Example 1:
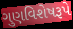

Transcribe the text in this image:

ગુણવિશેષરૂપે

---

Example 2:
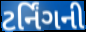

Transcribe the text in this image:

ટર્નિંગની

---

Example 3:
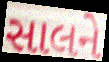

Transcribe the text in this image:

સાલને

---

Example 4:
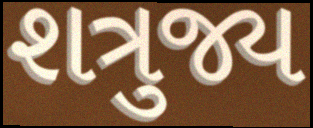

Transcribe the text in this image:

શત્રુજ્ય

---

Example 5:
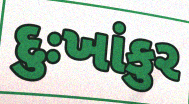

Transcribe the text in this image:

દુઃખાંકુર